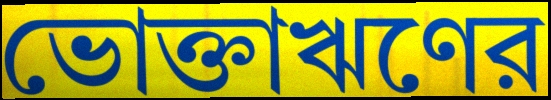
ভোক্তাঋণের